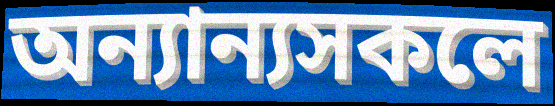
অন্যান্যসকলে